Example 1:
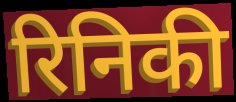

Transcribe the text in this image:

रिनिकी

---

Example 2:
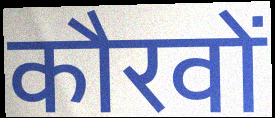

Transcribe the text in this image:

कौरवों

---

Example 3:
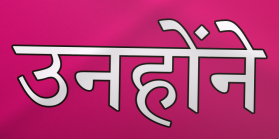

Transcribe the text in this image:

उनहोंने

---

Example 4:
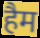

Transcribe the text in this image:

हैम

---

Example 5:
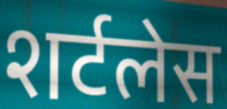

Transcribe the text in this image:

शर्टलेस